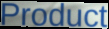
Product